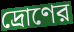
দ্রোণের